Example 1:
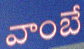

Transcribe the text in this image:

వాంబే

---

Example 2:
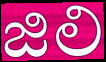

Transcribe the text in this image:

జిలి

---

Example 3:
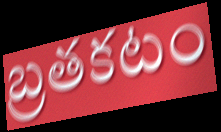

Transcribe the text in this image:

బ్రతకటం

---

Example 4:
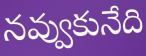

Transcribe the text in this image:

నవ్వుకునేది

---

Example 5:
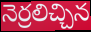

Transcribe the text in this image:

నెర్రలిచ్చిన